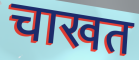
चाखत